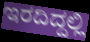
ಇರದಿದ್ದಲ್ಲಿ